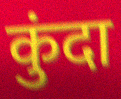
कुंदा